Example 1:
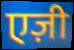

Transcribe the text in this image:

एज़ी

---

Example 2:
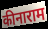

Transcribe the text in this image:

कीनाराम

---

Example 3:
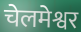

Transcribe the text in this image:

चेलमेश्वर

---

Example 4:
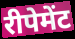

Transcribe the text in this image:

रीपेमेंट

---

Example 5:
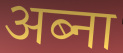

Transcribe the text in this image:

अब्ना